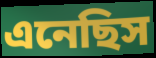
এনেছিস